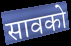
सावको